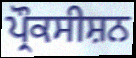
ਪ੍ਰੌਕਸੀਸ਼ਨ